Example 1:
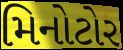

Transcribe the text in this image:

મિનોટોર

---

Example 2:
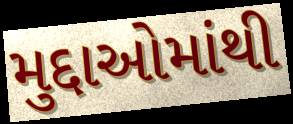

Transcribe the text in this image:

મુદ્દાઓમાંથી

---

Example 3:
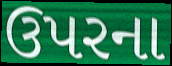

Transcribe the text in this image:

ઉપરના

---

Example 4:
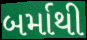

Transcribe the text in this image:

બર્માથી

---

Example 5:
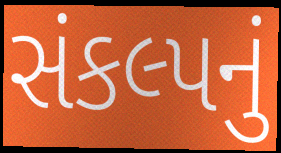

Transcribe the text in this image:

સંકલ્પનું